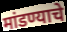
मांडण्याचे